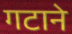
गटाने